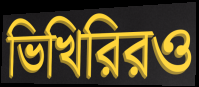
ভিখিরিরও